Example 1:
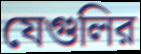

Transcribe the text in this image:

যেগুলির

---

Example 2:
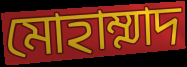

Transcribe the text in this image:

মোহাম্মাদ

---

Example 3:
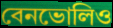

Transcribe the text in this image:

বেনভোলিও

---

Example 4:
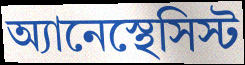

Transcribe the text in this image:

অ্যানেস্থেসিস্ট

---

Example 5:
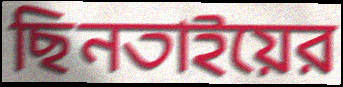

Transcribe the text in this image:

ছিনতাইয়ের